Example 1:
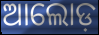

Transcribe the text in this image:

ଆଲୋଡ଼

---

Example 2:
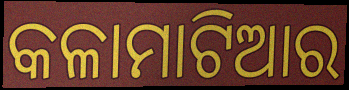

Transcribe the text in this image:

କଳାମାଟିଆର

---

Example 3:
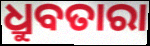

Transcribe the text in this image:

ଧ୍ରୁବତାରା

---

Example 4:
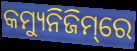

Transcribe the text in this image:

କମ୍ୟୁନିଜିମ୍‌ରେ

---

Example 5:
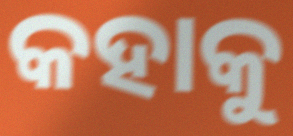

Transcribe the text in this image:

କହାକୁ